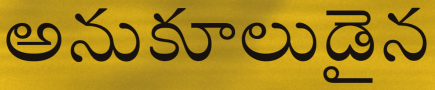
అనుకూలుడైన